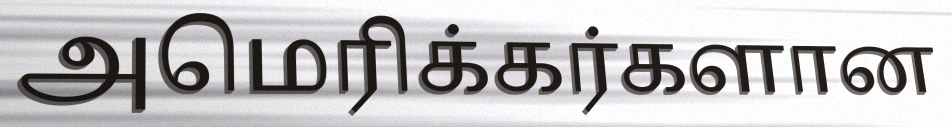
அமெரிக்கர்களான